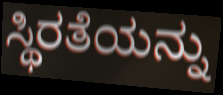
ಸ್ಥಿರತೆಯನ್ನು